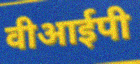
वीआईपी